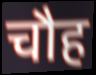
चौह